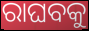
ରାଘବକୁ